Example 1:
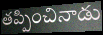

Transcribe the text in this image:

తప్పించినాడు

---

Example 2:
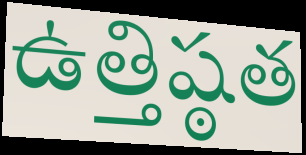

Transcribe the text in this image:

ఉత్తిష్ఠత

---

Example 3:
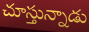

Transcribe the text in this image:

చూస్తున్నాడు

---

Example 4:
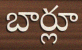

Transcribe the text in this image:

బార్లూ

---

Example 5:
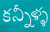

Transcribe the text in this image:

కన్నీళ్ళ